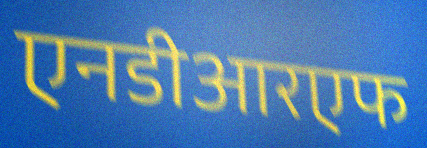
एनडीआरएफ